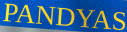
PANDYAS